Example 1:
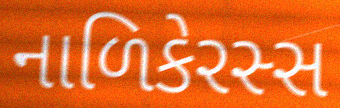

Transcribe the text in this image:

નાળિકેરસ્સ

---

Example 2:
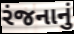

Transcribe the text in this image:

રંજનાનું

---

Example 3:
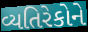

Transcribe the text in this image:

વ્યતિરેકોને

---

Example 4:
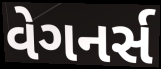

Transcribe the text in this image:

વેગનર્સ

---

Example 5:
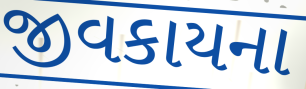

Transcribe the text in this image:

જીવકાયના